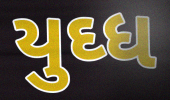
યુઘ્ધ